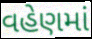
વહેણમાં